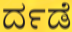
ರ್ದಡೆ